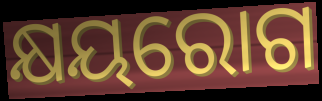
କ୍ଷୟରୋଗ